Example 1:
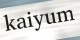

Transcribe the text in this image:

kaiyum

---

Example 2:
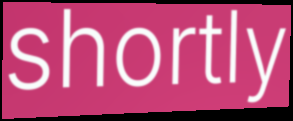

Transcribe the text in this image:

shortly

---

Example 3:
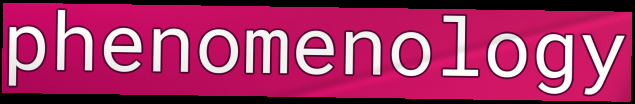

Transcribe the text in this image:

phenomenology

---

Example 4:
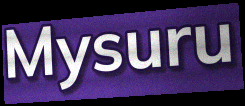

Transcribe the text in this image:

Mysuru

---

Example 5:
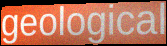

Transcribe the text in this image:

geological